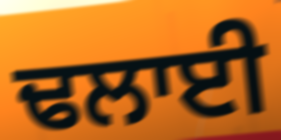
ਢਲਾਈ